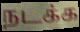
நடக்க